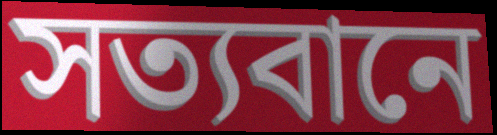
সত্যবানে